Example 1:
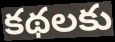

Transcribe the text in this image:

కథలకు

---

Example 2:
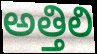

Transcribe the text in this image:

అత్తిలి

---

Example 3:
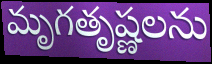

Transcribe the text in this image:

మృగతృష్ణలను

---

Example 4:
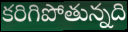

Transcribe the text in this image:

కరిగిపోతున్నది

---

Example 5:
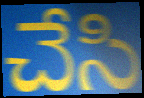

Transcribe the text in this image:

చేసి